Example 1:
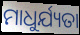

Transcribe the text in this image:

ମାଧୁର୍ଯ୍ୟତା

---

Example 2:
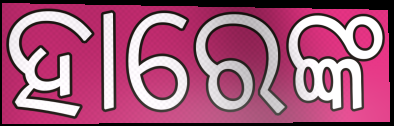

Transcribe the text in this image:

ହାରେଙ୍କ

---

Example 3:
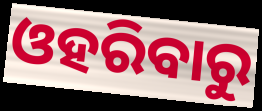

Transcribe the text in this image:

ଓହରିବାରୁ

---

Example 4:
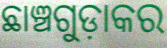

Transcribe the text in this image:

ଛାଞ୍ଚଗୁଡ଼ାକର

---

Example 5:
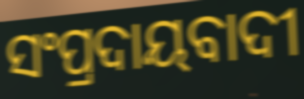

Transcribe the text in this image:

ସଂପ୍ରଦାୟବାଦୀ